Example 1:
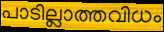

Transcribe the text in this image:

പാടില്ലാത്തവിധം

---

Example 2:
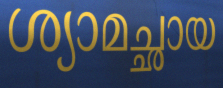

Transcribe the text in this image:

ശ്യാമച്ഛായ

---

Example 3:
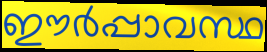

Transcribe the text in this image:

ഈർപ്പാവസ്ഥ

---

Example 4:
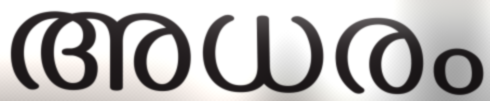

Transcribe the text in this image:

അധരം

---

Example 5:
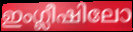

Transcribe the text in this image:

ഇംഗ്ലീഷിലോ